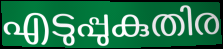
എടുപ്പുകുതിര